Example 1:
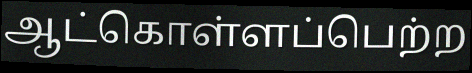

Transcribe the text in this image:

ஆட்கொள்ளப்பெற்ற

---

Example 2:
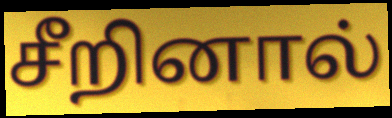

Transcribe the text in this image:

சீறினால்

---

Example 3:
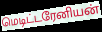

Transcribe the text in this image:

மெடிட்டரேனியன்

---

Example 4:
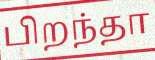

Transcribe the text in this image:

பிறந்தா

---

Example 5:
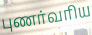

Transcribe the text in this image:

புணர்வரிய